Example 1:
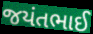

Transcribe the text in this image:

જયંતભાઈ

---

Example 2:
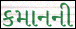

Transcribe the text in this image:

કમાનની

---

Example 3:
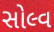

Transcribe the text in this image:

સોલ્વ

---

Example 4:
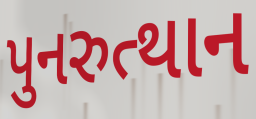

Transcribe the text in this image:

પુનરુત્થાન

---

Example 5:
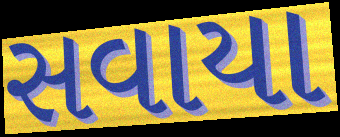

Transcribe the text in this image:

સવાયા